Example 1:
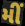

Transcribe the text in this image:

મીં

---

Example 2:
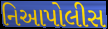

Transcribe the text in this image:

નિઆપોલીસ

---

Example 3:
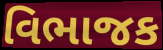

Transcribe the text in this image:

વિભાજક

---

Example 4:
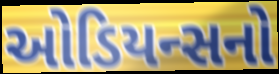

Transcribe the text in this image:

ઓડિયન્સનો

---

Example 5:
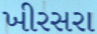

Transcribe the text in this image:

ખીરસરા